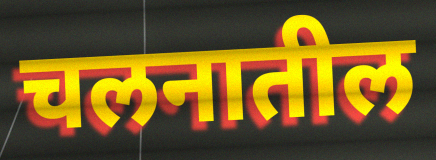
चलनातील